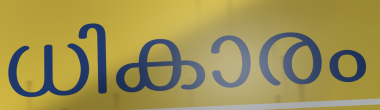
ധികാരം